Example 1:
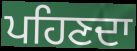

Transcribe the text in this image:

ਪਹਿਣਦਾ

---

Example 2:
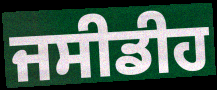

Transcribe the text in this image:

ਜਸੀਡੀਹ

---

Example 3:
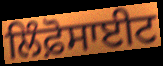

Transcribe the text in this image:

ਲਿੰਫ਼ੋਸਾਈਟ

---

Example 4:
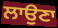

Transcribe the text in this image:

ਲਾਉਣਾ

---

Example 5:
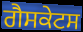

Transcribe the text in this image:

ਗੈਸਕੇਟਸ